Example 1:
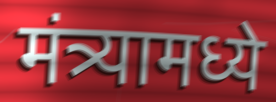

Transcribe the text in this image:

मंत्र्यामध्ये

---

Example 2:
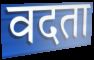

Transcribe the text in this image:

वदता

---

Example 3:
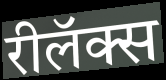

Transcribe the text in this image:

रीलॅक्स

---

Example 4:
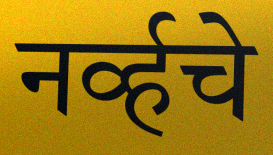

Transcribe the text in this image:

नर्व्हचे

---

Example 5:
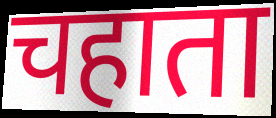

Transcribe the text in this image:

चहाता